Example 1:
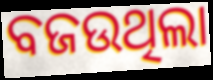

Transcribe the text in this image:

ବଜଉଥିଲା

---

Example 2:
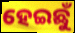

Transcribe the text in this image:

ହେଇଛୁଁ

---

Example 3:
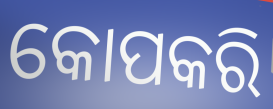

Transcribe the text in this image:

କୋପକରି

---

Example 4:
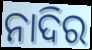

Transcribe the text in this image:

ନାଦିର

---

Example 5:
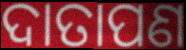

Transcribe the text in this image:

ଦାତାପଣ